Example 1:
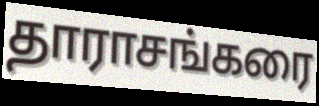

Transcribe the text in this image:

தாராசங்கரை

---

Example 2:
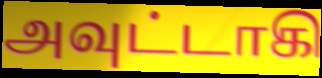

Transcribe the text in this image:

அவுட்டாகி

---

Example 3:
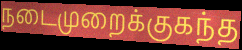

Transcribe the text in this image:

நடைமுறைக்குகந்த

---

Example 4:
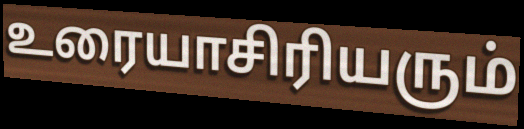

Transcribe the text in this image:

உரையாசிரியரும்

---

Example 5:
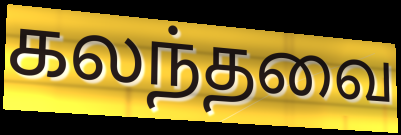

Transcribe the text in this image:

கலந்தவை